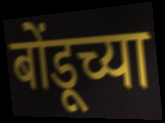
बोंडूच्या